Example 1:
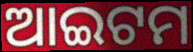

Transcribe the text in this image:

ଆଇଟମ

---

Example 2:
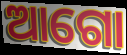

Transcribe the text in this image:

ଆଗୋ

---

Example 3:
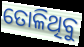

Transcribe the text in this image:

ତୋଳିଥିବୁ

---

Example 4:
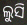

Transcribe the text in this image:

ଲୁସି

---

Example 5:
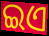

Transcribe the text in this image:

ଇଏ